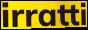
irratti